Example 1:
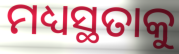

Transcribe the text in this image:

ମଧ୍ୟସ୍ଥତାକୁ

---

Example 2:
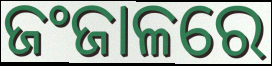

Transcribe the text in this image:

ଜଂଜାଳରେ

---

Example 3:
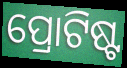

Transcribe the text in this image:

ପ୍ରୋଟିଷ୍ଟ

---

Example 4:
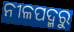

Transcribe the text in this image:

ନୀଳପଦ୍ମରୁ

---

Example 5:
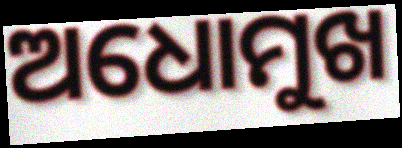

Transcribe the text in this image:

ଅଧୋମୁଖ